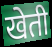
खेती